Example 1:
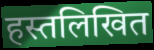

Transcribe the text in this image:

हस्तलिखित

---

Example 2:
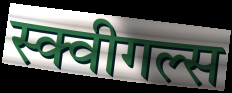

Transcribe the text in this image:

स्क्वीगल्स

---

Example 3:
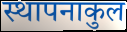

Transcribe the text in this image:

स्थापनाकुल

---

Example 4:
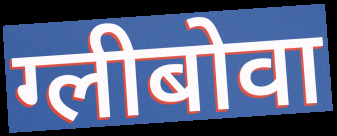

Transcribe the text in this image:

ग्लीबोवा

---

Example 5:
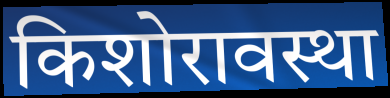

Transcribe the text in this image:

किशोरावस्था